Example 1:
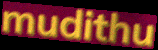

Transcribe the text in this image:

mudithu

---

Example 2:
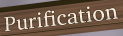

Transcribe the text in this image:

Purification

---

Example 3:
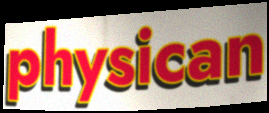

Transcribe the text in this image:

physican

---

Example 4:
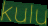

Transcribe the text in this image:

kulu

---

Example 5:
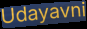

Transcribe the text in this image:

Udayavni